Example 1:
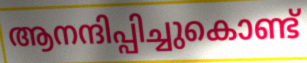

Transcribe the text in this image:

ആനന്ദിപ്പിച്ചുകൊണ്ട്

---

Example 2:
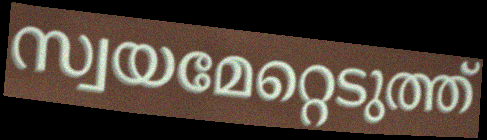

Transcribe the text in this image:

സ്വയമേറ്റെടുത്ത്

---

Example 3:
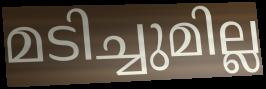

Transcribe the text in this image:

മടിച്ചുമില്ല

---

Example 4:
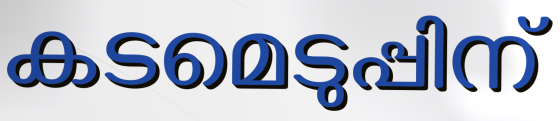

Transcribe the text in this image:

കടമെടുപ്പിന്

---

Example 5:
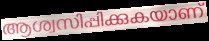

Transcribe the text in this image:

ആശ്വസിപ്പിക്കുകയാണ്